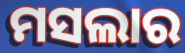
ମସଲାର